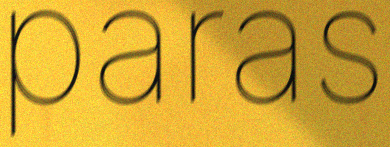
paras